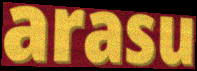
arasu